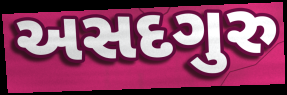
અસદગુરુ